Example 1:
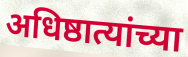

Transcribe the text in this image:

अधिष्ठात्यांच्या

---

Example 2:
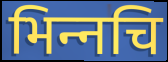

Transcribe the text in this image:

भिन्नचि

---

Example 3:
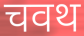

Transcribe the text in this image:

चवथ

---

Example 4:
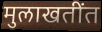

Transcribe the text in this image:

मुलाखतींत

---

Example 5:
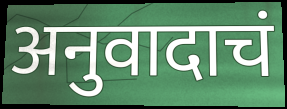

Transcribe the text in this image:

अनुवादाचं